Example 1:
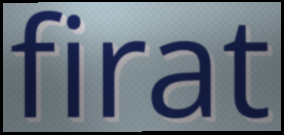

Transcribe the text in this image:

firat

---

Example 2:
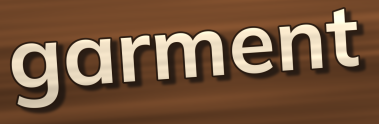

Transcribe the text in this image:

garment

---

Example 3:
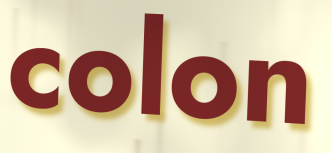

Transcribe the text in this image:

colon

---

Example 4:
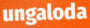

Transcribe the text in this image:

ungaloda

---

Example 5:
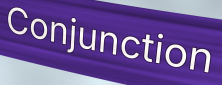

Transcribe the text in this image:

Conjunction